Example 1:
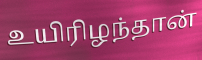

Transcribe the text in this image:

உயிரிழந்தான்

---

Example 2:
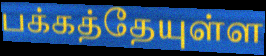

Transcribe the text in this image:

பக்கத்தேயுள்ள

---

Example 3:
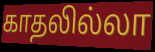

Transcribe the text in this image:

காதலில்லா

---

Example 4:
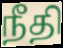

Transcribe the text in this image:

நீதி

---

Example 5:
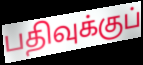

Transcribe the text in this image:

பதிவுக்குப்